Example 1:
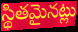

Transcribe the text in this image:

స్థితమైనట్లు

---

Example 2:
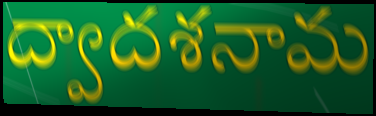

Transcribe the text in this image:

ద్వాదశనామ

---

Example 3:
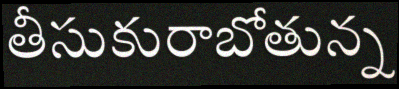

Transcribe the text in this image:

తీసుకురాబోతున్న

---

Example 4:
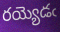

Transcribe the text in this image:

రయ్యెడఁ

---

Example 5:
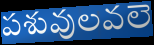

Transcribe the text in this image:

పశువులవలె